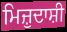
ਮਿਜ਼ੁਦਾਸ਼ੀ